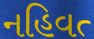
નહિવત્‍